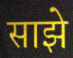
साझे